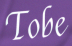
Tobe